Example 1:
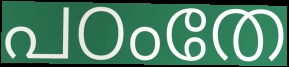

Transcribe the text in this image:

പഠംതേ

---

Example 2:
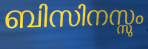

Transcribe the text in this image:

ബിസിനസ്സും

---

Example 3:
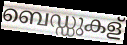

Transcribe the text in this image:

ബെഡ്ഡുകള്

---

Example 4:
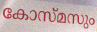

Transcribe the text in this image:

കോസ്മസും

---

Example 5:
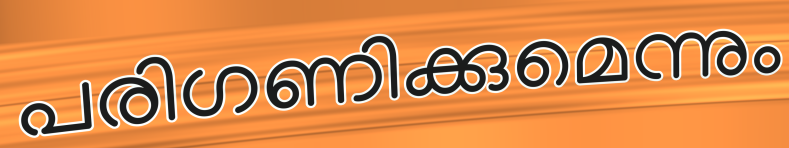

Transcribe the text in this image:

പരിഗണിക്കുമെന്നും